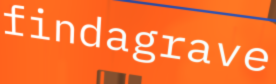
findagrave